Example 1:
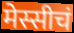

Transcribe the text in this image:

मेस्सीचं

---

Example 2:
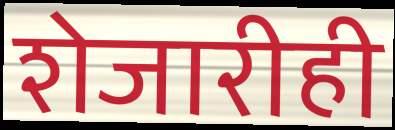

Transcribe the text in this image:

शेजारीही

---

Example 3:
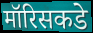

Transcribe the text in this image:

मॉरिसकडे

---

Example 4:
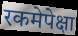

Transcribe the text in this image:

रकमेपेक्षा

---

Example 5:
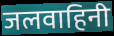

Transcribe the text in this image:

जलवाहिनी